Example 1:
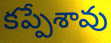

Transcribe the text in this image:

కప్పేశావు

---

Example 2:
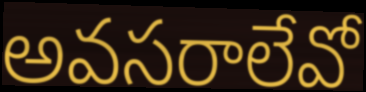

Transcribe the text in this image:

అవసరాలేవో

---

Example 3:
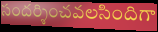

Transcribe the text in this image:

సందర్శించవలసిందిగా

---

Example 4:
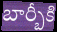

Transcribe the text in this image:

బార్బీకి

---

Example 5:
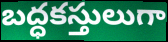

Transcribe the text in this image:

బద్ధకస్తులుగా